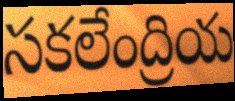
సకలేంద్రియ